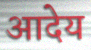
आदेय